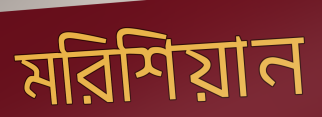
মরিশিয়ান